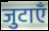
जुटाएँ